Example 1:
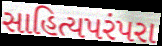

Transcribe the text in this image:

સાહિત્યપરંપરા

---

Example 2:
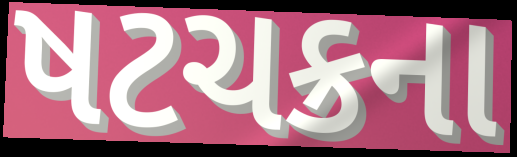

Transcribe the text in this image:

ષટચક્રના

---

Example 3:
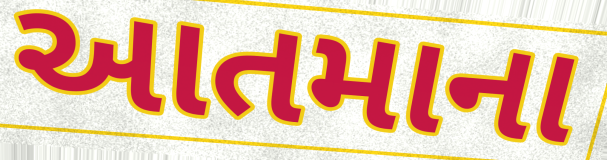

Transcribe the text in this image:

આતમાના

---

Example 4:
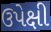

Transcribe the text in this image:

ઉપેક્ષી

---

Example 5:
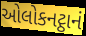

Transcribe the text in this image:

ઓલોકનટ્ઠાનં